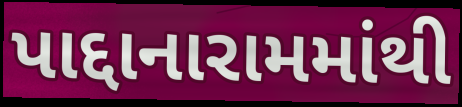
પાદ્દાનારામમાંથી